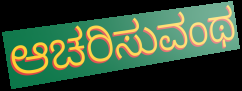
ಆಚರಿಸುವಂಥ